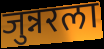
जुन्नरला